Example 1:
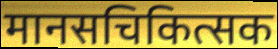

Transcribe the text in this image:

मानसचिकित्सक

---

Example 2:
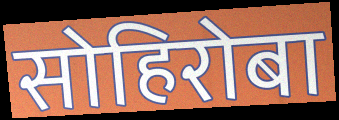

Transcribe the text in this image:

सोहिरोबा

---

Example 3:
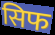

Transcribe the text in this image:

सिफ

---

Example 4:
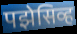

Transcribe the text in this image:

पझेसिव्ह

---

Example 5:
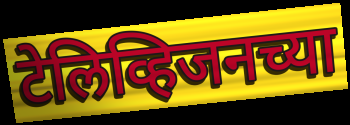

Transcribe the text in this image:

टेलिव्हिजनच्या